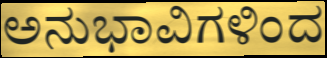
ಅನುಭಾವಿಗಳಿಂದ